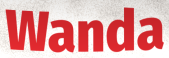
Wanda